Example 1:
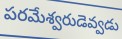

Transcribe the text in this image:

పరమేశ్వరుడెవ్వడు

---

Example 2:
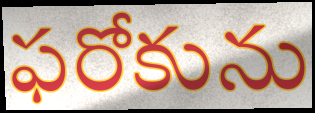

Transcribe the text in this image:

ఫరోకును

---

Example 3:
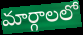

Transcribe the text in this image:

మార్గాలలో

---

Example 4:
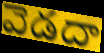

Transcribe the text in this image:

వెడదా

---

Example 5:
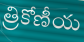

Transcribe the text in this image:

త్రికోణీయ